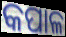
କପାଳ